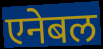
एनेबल